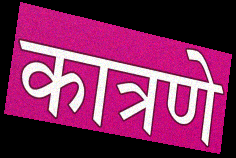
कात्रणे